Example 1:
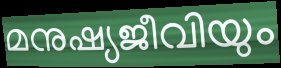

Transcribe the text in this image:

മനുഷ്യജീവിയും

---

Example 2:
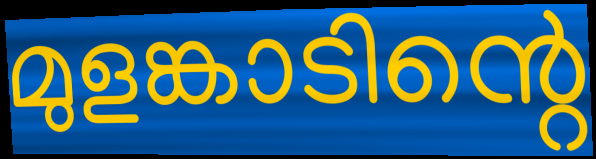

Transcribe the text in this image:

മുളങ്കാടിന്റെ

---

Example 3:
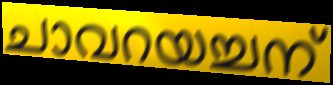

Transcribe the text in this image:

ചാവറയച്ചന്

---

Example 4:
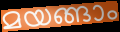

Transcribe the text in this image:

മയങ്ങാം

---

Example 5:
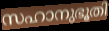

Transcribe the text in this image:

സഹാനുഭൂതി